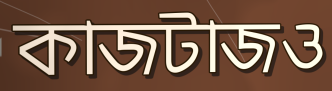
কাজটাজও